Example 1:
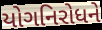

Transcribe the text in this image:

યોગનિરોધને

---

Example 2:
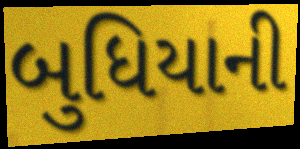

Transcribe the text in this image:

બુધિયાની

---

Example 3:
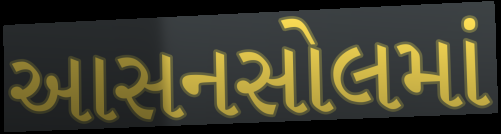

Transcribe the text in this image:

આસનસોલમાં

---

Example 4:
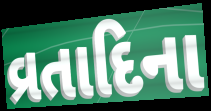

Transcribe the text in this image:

વ્રતાદિના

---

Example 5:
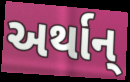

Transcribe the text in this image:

અર્થાન્